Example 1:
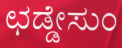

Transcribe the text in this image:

ಛಡ್ಡೇಸುಂ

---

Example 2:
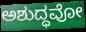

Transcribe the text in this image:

ಅಶುದ್ಧವೋ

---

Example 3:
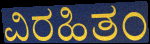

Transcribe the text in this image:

ವಿರಹಿತಂ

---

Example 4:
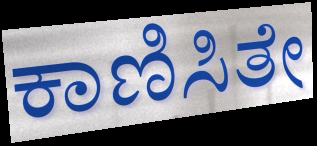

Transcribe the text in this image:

ಕಾಣಿಸಿತೇ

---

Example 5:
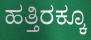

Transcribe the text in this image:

ಹತ್ತಿರಕ್ಕೂ